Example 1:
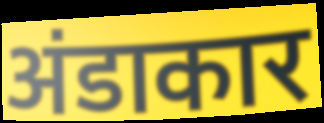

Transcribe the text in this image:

अंडाकार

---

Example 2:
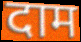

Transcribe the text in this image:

दाम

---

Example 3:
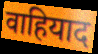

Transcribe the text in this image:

वाहियाद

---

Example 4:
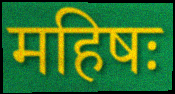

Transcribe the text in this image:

महिषः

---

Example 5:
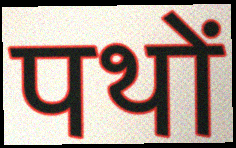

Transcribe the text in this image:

पथों